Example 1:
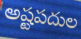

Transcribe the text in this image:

అష్టపదుల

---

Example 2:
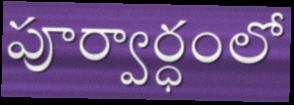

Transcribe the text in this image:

పూర్వార్ధంలో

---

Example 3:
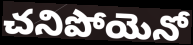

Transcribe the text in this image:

చనిపోయెనో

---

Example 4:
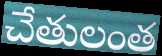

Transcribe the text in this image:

చేతులంత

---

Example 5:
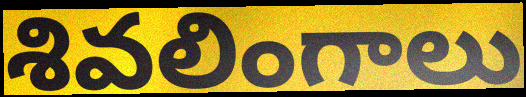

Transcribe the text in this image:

శివలింగాలు